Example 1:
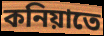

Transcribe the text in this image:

কনিয়াতে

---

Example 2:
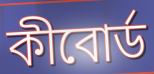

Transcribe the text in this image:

কীবোর্ড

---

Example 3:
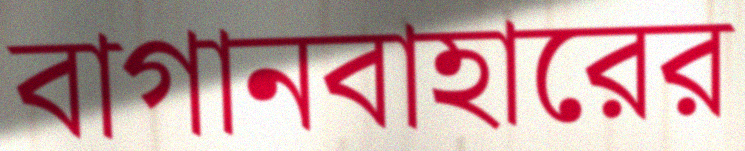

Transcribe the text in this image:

বাগানবাহারের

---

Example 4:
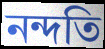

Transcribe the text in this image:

নন্দতি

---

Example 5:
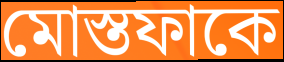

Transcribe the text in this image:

মোস্তফাকে